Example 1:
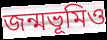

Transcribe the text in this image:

জন্মভূমিও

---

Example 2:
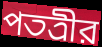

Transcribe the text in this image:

পতত্রীর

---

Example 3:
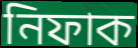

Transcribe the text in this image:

নিফাক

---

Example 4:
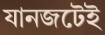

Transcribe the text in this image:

যানজটেই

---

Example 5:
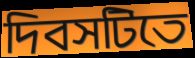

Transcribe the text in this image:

দিবসটিতে